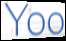
Yoo